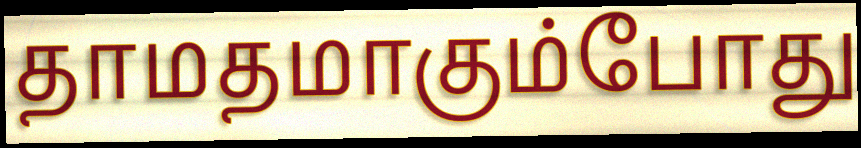
தாமதமாகும்போது